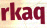
rkaq